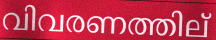
വിവരണത്തില്